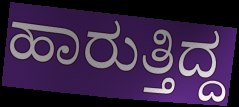
ಹಾರುತ್ತಿದ್ದ